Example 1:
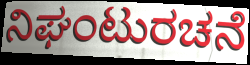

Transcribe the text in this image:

ನಿಘಂಟುರಚನೆ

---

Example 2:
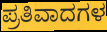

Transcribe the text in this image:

ಪ್ರತಿವಾದಗಳ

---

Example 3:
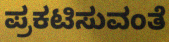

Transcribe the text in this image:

ಪ್ರಕಟಿಸುವಂತೆ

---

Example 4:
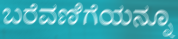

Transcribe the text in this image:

ಬರೆವಣಿಗೆಯನ್ನೂ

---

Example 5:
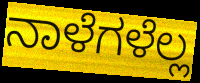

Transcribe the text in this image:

ನಾಳೆಗಳೆಲ್ಲ